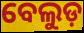
ବେଲୁଡ଼